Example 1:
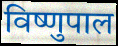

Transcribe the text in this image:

विष्णुपाल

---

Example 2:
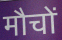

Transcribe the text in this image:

मौचों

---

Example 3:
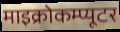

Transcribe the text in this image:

माइक्रोकम्प्यूटर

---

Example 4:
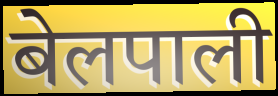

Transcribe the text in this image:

बेलपाली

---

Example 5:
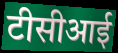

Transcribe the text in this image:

टीसीआई